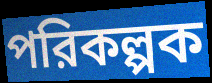
পরিকল্পক